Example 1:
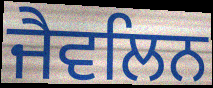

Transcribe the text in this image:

ਜੈਵਲਿਨ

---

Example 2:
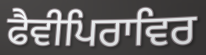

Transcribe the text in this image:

ਫੈਵੀਪਿਰਾਵਿਰ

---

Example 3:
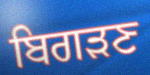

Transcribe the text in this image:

ਬਿਗੜਣ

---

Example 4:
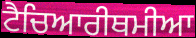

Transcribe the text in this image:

ਟੈਚਿਆਰੀਥਮੀਆ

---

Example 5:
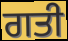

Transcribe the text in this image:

ਗਤੀ